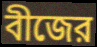
বীজের